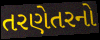
તરણેતરનો